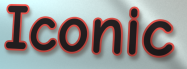
Iconic